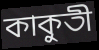
কাকুতী